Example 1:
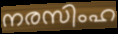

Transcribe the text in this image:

നരസിംഹ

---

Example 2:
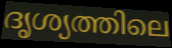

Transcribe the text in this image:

ദൃശ്യത്തിലെ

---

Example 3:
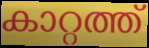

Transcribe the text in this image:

കാറ്റത്ത്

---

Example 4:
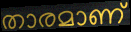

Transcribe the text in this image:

താരമാണ്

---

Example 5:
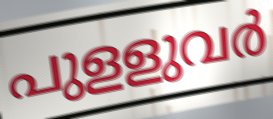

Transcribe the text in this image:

പുളളുവർ